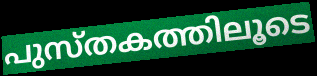
പുസ്തകത്തിലൂടെ